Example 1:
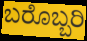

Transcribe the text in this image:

ಬರೊಬ್ಬರಿ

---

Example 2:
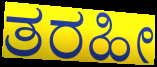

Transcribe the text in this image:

ತರಹೀ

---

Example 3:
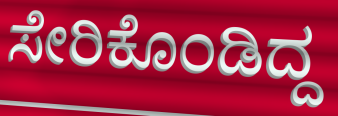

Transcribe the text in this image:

ಸೇರಿಕೊಂಡಿದ್ದ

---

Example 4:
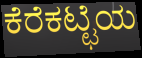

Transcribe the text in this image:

ಕೆರೆಕಟ್ಟೆಯ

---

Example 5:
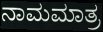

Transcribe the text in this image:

ನಾಮಮಾತ್ರ